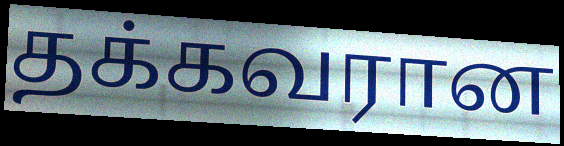
தக்கவரான